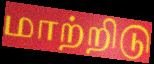
மாற்றிடு